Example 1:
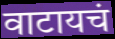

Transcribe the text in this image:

वाटायचं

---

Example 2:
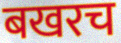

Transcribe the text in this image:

बखरच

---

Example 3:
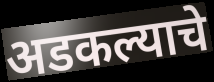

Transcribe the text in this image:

अडकल्याचे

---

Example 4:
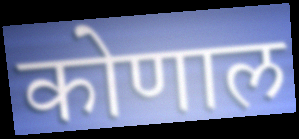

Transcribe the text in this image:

कोणाल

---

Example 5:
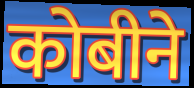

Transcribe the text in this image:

कोबीने